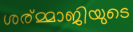
ശര്മ്മാജിയുടെ